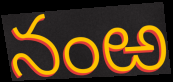
నంఱ